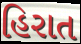
હિરાત